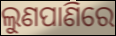
ଲୁଣପାଣିରେ